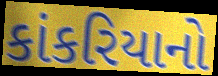
કાંકરિયાનો